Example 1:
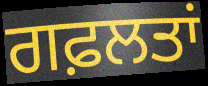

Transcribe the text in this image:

ਗਫ਼ਲਤਾਂ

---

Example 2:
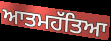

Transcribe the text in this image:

ਆਤਮਹੱਤਿਆ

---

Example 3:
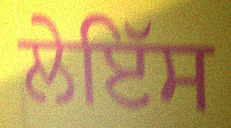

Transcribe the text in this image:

ਲੇਇੱਸ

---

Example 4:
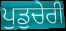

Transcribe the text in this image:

ਪੁਡੁਚੇਰੀ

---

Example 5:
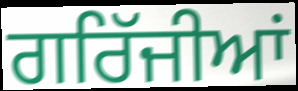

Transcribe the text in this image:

ਗਰਿੱਜੀਆਂ